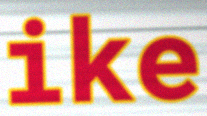
ike